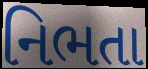
નિભતા